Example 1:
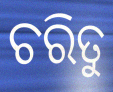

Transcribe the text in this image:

ଚରିତୁ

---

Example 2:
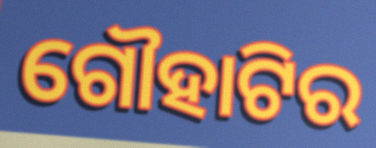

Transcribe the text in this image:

ଗୌହାଟିର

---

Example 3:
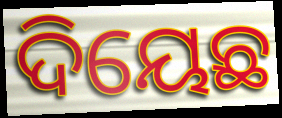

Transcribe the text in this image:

ଦିୟେଛ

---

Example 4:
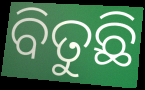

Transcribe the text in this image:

ବିତୁଛି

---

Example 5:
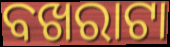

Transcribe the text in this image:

ବଖରାଟା